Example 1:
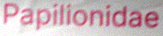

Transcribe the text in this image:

Papilionidae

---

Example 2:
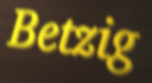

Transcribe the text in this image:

Betzig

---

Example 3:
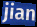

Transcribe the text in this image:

jian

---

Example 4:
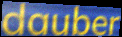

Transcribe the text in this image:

dauber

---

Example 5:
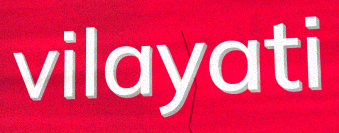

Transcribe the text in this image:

vilayati